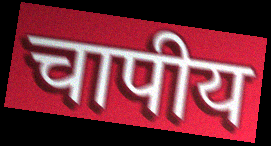
चापीय